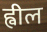
ह्वील